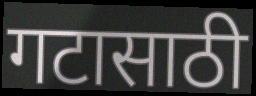
गटासाठी